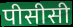
पीसीसी